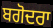
ਬਗੋਦਰਾ